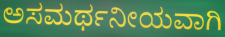
ಅಸಮರ್ಥನೀಯವಾಗಿ